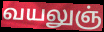
வயலுஞ்